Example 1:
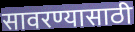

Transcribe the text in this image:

सावरण्यासाठी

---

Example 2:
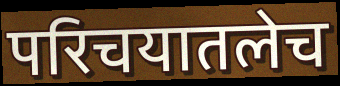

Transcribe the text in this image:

परिचयातलेच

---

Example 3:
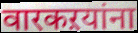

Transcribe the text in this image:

वारकऱयांना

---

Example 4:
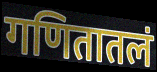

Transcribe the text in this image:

गणितातलं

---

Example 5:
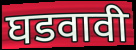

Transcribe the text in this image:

घडवावी